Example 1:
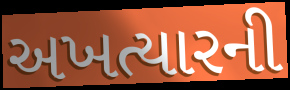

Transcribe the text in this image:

અખત્યારની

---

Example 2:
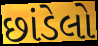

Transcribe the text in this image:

છાંડેલો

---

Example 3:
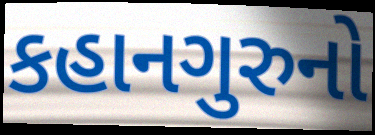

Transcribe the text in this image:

કહાનગુરુનો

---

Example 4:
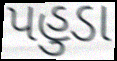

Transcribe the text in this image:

પહુડા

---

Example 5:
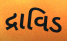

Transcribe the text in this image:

દ્રાવિડ